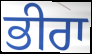
ਭੀਰਾ